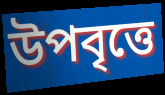
উপবৃত্তে